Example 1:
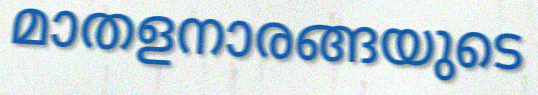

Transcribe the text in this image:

മാതളനാരങ്ങയുടെ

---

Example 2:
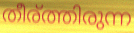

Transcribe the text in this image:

തീര്ത്തിരുന്ന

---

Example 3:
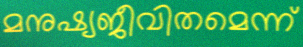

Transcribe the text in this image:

മനുഷ്യജീവിതമെന്ന്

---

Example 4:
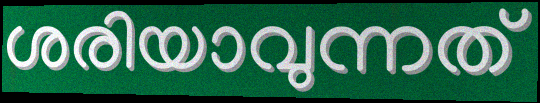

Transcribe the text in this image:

ശരിയാവുന്നത്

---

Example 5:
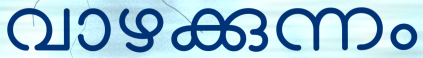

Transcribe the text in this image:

വാഴക്കുന്നം